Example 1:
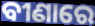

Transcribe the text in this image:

ବୀଣାରେ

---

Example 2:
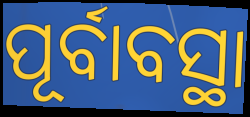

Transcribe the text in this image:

ପୂର୍ବାବସ୍ଥା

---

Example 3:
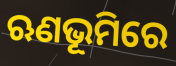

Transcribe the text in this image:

ଋଣଭୂମିରେ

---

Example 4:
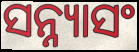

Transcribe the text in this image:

ସନ୍ନ୍ୟାସଂ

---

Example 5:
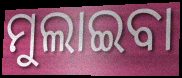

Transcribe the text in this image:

ମୁଲାଇବା